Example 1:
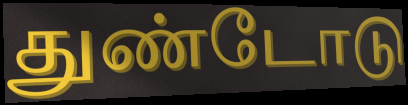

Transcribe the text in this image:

துண்டோடு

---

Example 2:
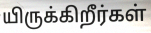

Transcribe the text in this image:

யிருக்கிறீர்கள்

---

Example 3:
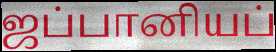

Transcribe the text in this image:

ஜப்பானியப்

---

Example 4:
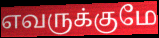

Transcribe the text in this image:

எவருக்குமே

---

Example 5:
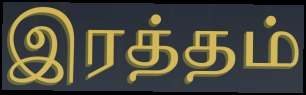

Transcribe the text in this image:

இரத்தம்